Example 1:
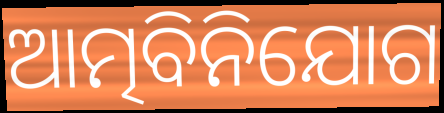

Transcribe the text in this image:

ଆତ୍ମବିନିଯୋଗ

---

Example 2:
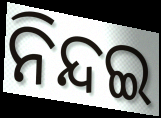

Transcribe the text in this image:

ନିନ୍ଦଇ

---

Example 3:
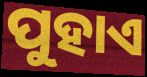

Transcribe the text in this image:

ପୁହାଏ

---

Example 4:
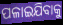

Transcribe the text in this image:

ପଳାଇଯିବାକୁ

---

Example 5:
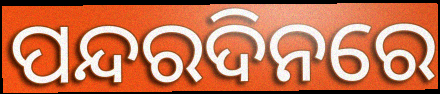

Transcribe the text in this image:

ପନ୍ଦରଦିନରେ